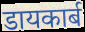
डायकार्ब